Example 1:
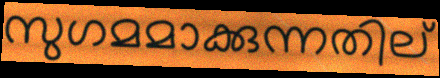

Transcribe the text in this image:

സുഗമമാക്കുന്നതില്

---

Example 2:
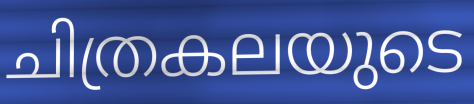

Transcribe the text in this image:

ചിത്രകലയുടെ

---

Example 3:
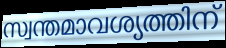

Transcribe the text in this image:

സ്വന്തമാവശ്യത്തിന്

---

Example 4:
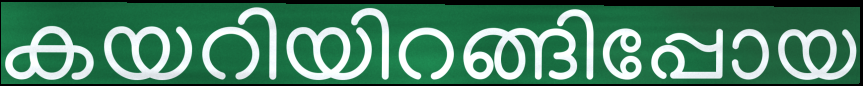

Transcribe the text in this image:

കയറിയിറങ്ങിപ്പോയ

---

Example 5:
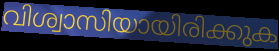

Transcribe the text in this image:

വിശ്വാസിയായിരിക്കുക